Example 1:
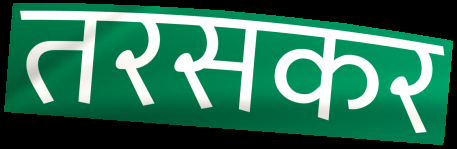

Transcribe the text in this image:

तरसकर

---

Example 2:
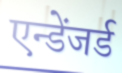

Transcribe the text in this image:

एन्डेंजर्ड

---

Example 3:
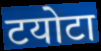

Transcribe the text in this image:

टयोटा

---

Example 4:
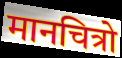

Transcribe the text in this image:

मानचित्रो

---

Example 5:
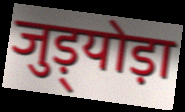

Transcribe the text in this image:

जुड़्योड़ा